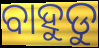
ବାହୁଡୁ